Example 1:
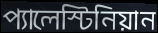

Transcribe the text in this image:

প্যালেস্টিনিয়ান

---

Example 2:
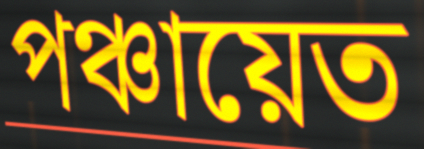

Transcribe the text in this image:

পঞ্চায়েত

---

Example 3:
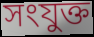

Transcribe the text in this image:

সংযুক্ত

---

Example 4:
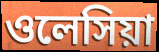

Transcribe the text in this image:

ওলেসিয়া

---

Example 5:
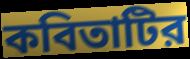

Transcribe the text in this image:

কবিতাটির